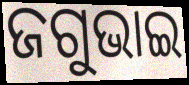
ଜଗୁଭାଇ